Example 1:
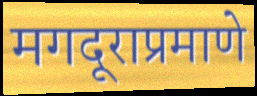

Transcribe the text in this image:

मगदूराप्रमाणे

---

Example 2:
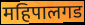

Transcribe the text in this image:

महिपालगड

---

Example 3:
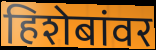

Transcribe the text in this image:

हिशेबांवर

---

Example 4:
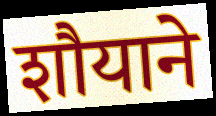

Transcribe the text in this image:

शौयाने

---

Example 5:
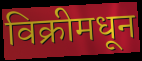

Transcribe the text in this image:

विक्रीमधून